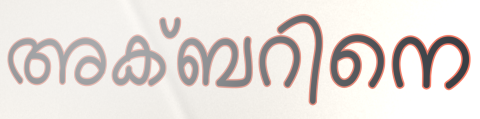
അക്ബറിനെ